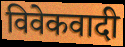
विवेकवादी